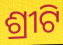
ଶ୍ରୀଟି